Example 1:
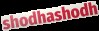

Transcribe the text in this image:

shodhashodh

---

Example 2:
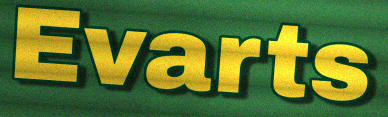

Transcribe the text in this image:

Evarts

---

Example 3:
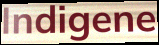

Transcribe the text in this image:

Indigene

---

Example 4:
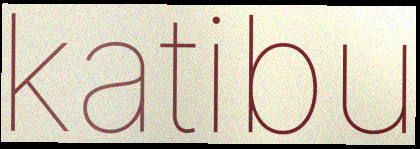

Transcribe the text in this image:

katibu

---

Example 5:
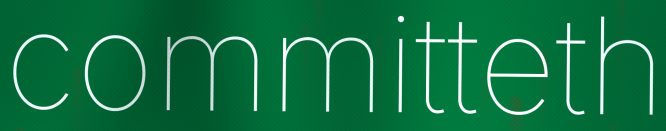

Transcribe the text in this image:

committeth